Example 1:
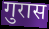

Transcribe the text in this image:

गुरास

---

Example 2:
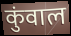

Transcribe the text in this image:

कुंवाल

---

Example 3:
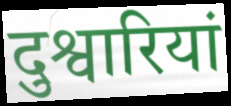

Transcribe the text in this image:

दुश्वारियां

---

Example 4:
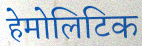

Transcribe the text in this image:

हेमोलिटिक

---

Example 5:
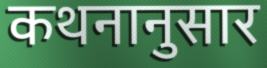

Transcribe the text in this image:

कथनानुसार